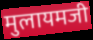
मुलायमजी